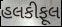
હલકીફૂલ